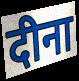
दीना